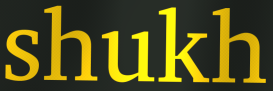
shukh